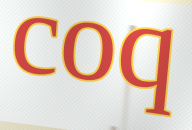
coq